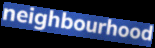
neighbourhood